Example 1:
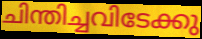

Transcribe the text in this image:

ചിന്തിച്ചവിടേക്കു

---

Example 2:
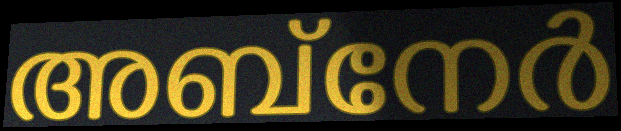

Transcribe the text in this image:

അബ്നേർ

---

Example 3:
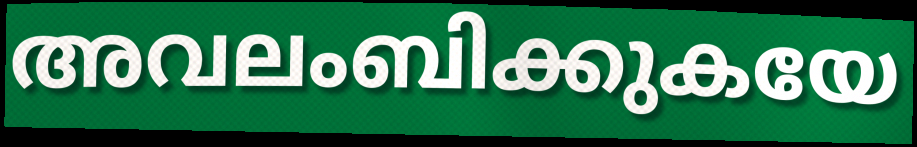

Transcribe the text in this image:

അവലംബിക്കുകയേ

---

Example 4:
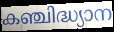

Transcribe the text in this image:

കഞ്ചിദ്ധ്യാന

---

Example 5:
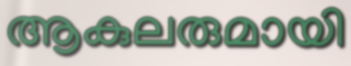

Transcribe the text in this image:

ആകുലരുമായി